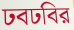
ঢবঢবির